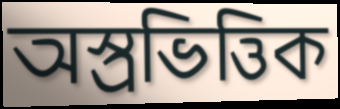
অস্ত্রভিত্তিক